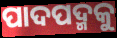
ପାଦପଦ୍ମକୁ